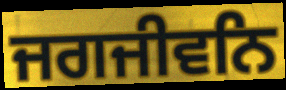
ਜਗਜੀਵਨਿ